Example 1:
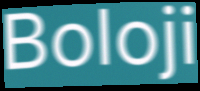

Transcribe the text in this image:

Boloji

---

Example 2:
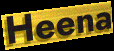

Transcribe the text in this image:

Heena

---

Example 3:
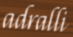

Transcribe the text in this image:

adralli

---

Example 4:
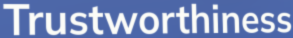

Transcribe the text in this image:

Trustworthiness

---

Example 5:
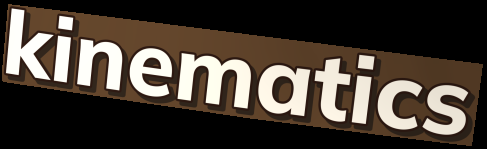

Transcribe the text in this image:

kinematics